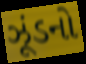
ઝૂંડનો